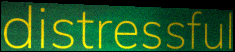
distressful